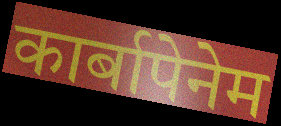
कार्बापेनेम